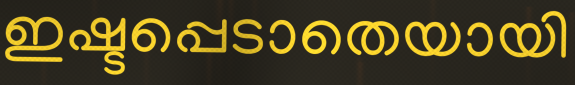
ഇഷ്ടപ്പെടാതെയായി